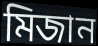
মিজান